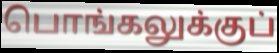
பொங்கலுக்குப்